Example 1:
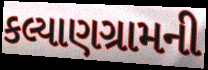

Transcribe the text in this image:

કલ્યાણગ્રામની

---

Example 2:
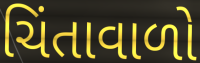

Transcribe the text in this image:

ચિંતાવાળો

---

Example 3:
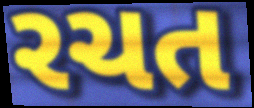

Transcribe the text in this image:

રચત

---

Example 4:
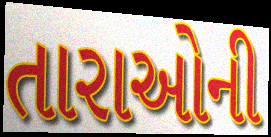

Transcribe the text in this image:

તારાઓની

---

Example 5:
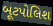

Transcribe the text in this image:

બૂટપોલિશ